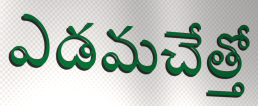
ఎడమచేత్తో